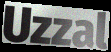
Uzzal